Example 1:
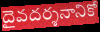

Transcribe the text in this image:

దైవదర్శనానికో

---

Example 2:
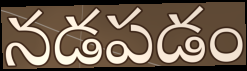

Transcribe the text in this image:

నడపడం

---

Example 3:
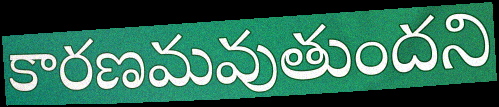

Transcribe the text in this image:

కారణమవుతుందని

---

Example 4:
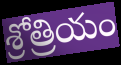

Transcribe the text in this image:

శ్రోత్రియం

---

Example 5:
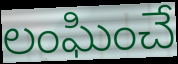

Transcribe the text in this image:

లంఘించే